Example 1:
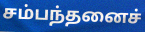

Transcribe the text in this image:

சம்பந்தனைச்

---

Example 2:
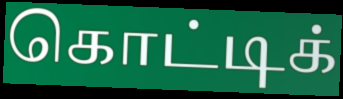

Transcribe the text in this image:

கொட்டிக்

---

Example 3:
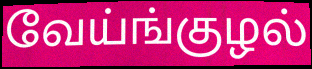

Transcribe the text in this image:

வேய்ங்குழல்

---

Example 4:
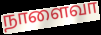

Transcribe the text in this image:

நாளைவா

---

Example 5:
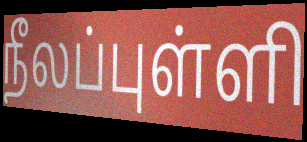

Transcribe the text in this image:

நீலப்புள்ளி